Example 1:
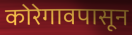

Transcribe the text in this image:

कोरेगावपासून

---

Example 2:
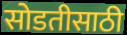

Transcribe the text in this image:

सोडतीसाठी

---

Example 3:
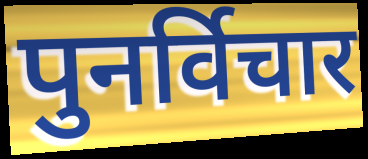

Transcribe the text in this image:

पुनर्विचार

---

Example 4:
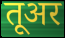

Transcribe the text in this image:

तूअर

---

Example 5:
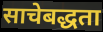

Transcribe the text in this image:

साचेबद्धता